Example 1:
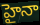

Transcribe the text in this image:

హైనా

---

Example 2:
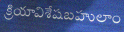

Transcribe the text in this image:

క్రియావిశేషబహులాం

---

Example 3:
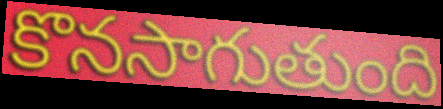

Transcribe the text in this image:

కొనసాగుతుంది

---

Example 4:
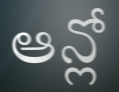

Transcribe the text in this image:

ఆన్లో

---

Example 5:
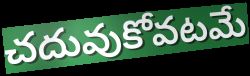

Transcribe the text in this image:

చదువుకోవటమే